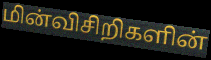
மின்விசிறிகளின்